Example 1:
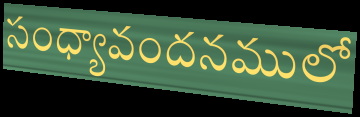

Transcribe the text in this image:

సంధ్యావందనములో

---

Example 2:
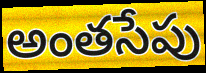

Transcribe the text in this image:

అంతసేపు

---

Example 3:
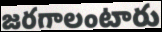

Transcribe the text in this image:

జరగాలంటారు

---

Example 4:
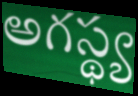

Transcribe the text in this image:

అగస్థ్య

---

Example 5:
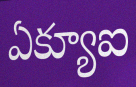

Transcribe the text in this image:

ఏక్యూఐ